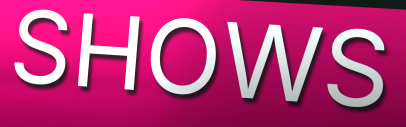
SHOWS